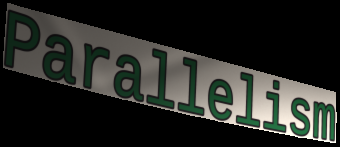
Parallelism